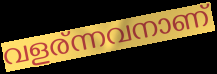
വളര്ന്നവനാണ്